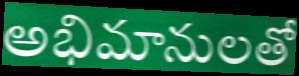
అభిమానులతో